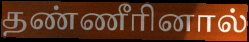
தண்ணீரினால்